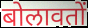
बोलावतों